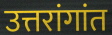
उत्तरांगांत